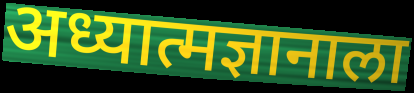
अध्यात्मज्ञानाला